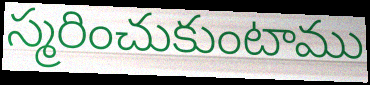
స్మరించుకుంటాము